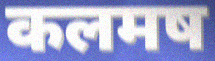
कलमष